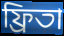
ফ্রিতা